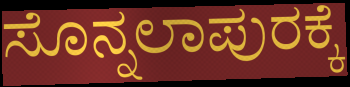
ಸೊನ್ನಲಾಪುರಕ್ಕೆ